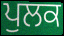
ਪੁਲਕ